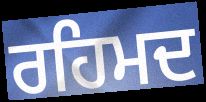
ਰਹਿਮਦ